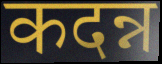
कदन्न